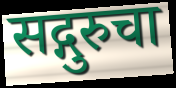
सद्गुरुचा